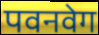
पवनवेग